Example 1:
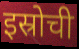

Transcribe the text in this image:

इस्रोची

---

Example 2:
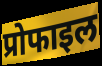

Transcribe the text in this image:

प्रोफाइल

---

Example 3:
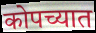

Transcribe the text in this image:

कोपच्यात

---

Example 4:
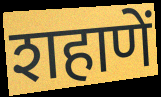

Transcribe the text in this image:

शहाणें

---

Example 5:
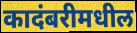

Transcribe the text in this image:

कादंबरीमधील